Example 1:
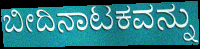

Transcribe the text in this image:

ಬೀದಿನಾಟಕವನ್ನು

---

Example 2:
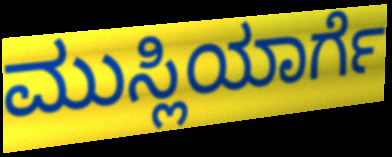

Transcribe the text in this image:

ಮುಸ್ಲಿಯಾರ್ಗೆ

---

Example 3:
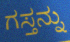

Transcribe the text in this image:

ಗಸ್ತನ್ನು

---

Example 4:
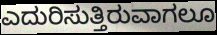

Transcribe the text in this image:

ಎದುರಿಸುತ್ತಿರುವಾಗಲೂ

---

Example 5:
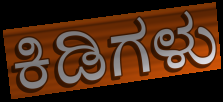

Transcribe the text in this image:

ಕಿಡಿಗಳು